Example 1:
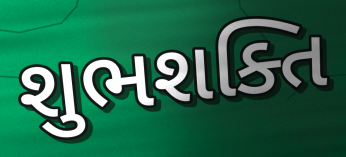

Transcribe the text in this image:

શુભશક્તિ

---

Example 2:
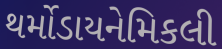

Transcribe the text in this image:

થર્મોડાયનેમિકલી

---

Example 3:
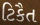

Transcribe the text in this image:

ટિકૈત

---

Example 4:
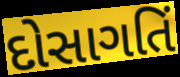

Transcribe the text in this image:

દોસાગતિં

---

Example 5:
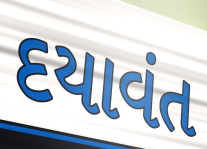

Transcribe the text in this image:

દયાવંત